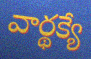
వార్థక్యే